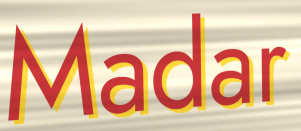
Madar